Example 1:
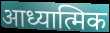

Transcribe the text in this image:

आध्यात्मिक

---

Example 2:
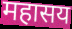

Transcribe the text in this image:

महासय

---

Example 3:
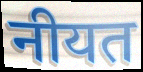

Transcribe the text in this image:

नीयत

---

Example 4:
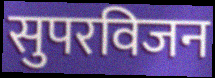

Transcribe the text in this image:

सुपरविजन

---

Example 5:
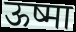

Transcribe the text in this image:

ऊष्मा